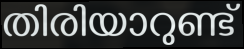
തിരിയാറുണ്ട്